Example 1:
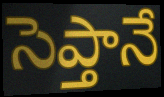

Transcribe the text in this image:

సెప్తానే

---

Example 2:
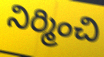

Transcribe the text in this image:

నిర్మించి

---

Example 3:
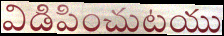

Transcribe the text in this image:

విడిపించుటయు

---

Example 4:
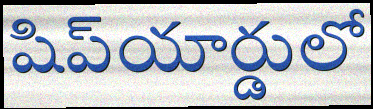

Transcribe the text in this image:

షిప్‌యార్డులో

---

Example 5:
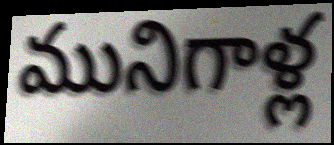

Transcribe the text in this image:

మునిగాళ్ల